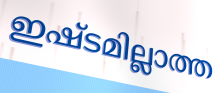
ഇഷ്ടമില്ലാത്ത